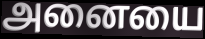
அனையை